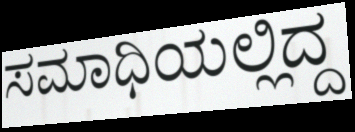
ಸಮಾಧಿಯಲ್ಲಿದ್ದ